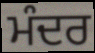
ਮੰਦਰ